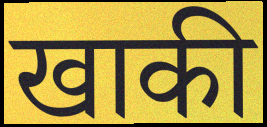
खाकी